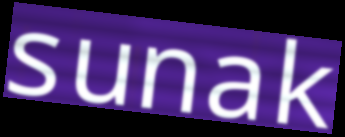
sunak